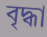
বৃদ্ধা